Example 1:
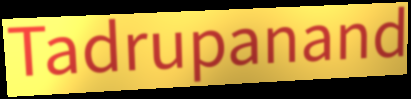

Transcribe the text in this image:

Tadrupanand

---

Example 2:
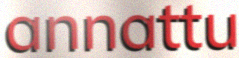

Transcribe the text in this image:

annattu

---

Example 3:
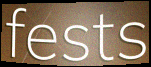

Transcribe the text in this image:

fests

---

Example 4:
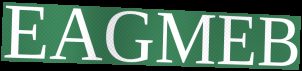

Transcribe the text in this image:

EAGMEB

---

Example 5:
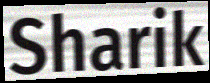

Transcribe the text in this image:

Sharik